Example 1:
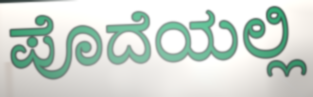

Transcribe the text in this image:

ಪೊದೆಯಲ್ಲಿ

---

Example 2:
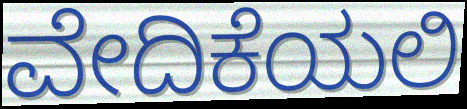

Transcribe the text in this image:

ವೇದಿಕೆಯಲಿ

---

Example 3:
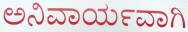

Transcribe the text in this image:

ಅನಿವಾರ್ಯವಾಗಿ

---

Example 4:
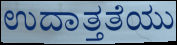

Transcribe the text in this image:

ಉದಾತ್ತತೆಯು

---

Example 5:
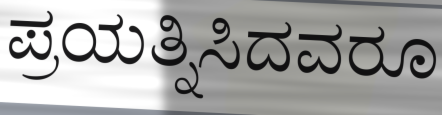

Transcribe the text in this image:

ಪ್ರಯತ್ನಿಸಿದವರೂ